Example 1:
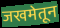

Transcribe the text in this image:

जखमेतून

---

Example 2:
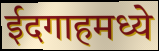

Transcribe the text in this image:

ईदगाहमध्ये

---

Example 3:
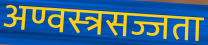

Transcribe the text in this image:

अण्वस्त्रसज्जता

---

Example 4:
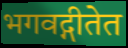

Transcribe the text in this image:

भगवद्गीतेत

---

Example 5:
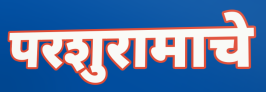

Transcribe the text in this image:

परशुरामाचे